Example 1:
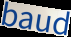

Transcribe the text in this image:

baud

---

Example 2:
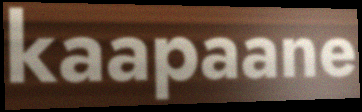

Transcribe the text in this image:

kaapaane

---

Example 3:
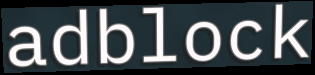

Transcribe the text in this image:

adblock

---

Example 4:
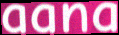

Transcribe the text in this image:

aana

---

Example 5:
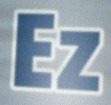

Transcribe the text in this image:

Ez